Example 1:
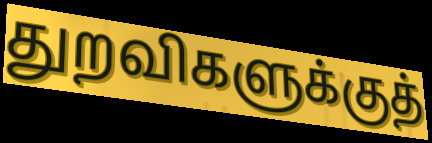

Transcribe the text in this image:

துறவிகளுக்குத்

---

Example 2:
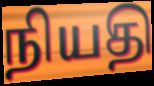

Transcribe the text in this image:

நியதி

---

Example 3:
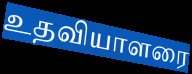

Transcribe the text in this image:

உதவியாளரை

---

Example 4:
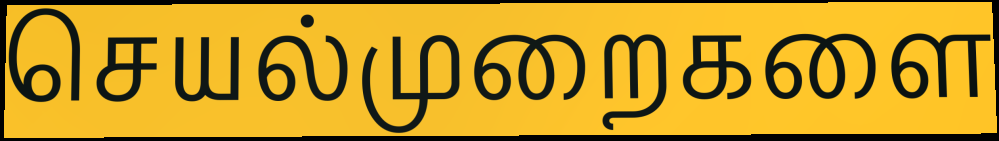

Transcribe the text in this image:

செயல்முறைகளை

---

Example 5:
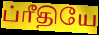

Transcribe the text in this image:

ப்ரீதியே